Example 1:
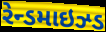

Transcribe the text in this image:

રેન્ડમાઇઝ્ડ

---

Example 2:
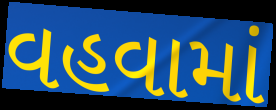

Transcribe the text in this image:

વહવામાં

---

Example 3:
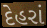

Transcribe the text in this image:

દેહરાં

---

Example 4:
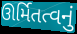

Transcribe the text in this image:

ઊર્મિતત્વનું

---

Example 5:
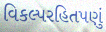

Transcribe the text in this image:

વિકલ્પરહિતપણું